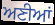
ਅਣੀਆਂ